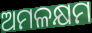
ଅମଳକ୍ଷମ